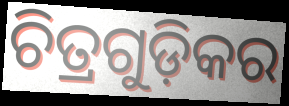
ଚିତ୍ରଗୁଡ଼ିକର